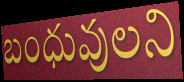
బంధువులని